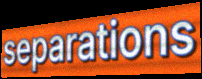
separations